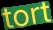
tort